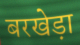
बरखेड़ा